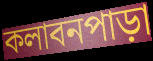
কলাবনপাড়া